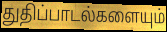
துதிப்பாடல்களையும்